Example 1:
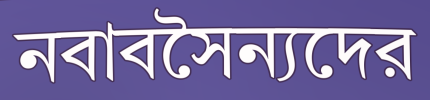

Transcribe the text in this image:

নবাবসৈন্যদের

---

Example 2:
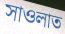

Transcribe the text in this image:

সাওলাত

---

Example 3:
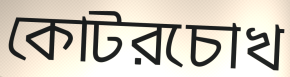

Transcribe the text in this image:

কোটরচোখ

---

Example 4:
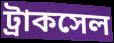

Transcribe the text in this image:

ট্রাকসেল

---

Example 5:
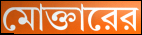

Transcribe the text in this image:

মোক্তারের